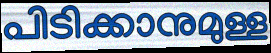
പിടിക്കാനുമുള്ള